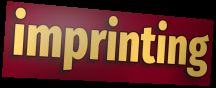
imprinting